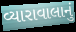
વ્યારાવાલાનું